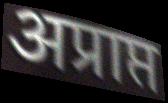
अप्राप्त